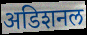
अडिशनल